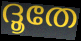
ദൂതേ